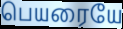
பெயரையே